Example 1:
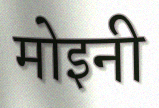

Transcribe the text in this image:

मोइनी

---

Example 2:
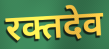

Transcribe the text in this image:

रक्तदेव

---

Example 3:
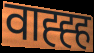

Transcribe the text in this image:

वाह्ह्ह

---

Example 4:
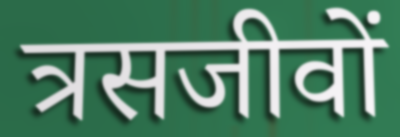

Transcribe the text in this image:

त्रसजीवों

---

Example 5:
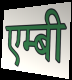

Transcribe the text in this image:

एम्बी